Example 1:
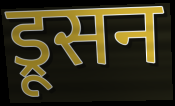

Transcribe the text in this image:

ड्रूसन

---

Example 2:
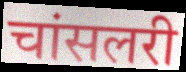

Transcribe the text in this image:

चांसलरी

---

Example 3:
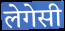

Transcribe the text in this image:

लेगेसी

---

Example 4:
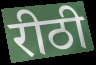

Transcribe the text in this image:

रीठी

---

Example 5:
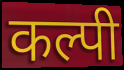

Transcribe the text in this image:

कल्पी